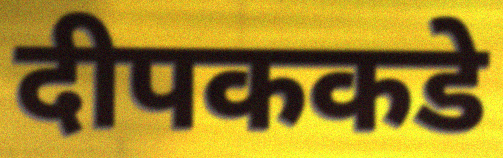
दीपककडे